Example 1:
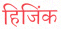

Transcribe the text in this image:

हिजिंक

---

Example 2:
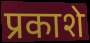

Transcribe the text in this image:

प्रकाशे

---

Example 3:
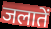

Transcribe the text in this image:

जलातें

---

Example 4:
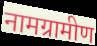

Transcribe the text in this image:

नामग्रामीण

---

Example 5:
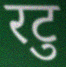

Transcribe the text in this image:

रटु